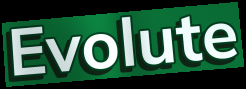
Evolute